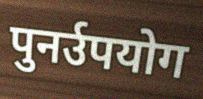
पुनर्उपयोग